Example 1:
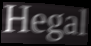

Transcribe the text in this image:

Hegal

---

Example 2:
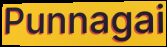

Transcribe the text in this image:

Punnagai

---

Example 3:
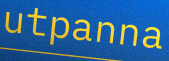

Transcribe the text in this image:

utpanna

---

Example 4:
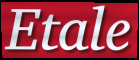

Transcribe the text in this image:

Etale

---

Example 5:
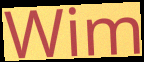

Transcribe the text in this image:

Wim